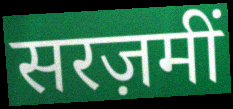
सरज़मीं